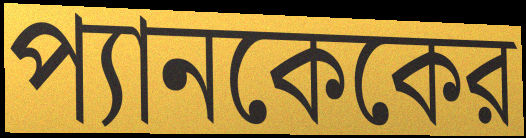
প্যানকেকের